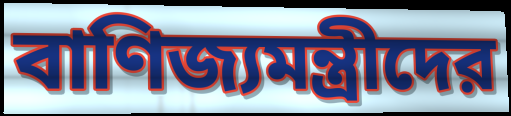
বাণিজ্যমন্ত্রীদের